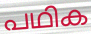
പഥിക